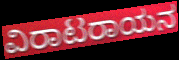
ವಿರಾಟರಾಯನ